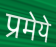
प्रमेये